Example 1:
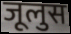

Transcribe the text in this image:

जूलुस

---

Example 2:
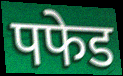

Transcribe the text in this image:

पफेड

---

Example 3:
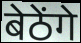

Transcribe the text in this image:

बेठेंगे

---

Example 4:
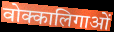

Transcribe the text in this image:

वोक्कालिगाओं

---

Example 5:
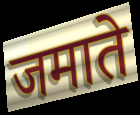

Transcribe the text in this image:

जमाते